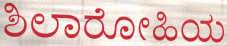
ಶಿಲಾರೋಹಿಯ